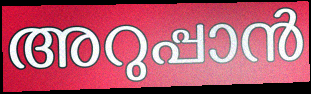
അറുപ്പാൻ